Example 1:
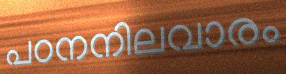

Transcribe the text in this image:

പഠനനിലവാരം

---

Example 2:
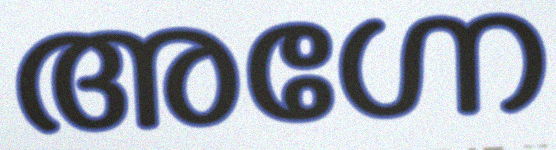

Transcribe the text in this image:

അഗ്നേ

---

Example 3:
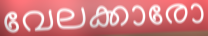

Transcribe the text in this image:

വേലക്കാരോ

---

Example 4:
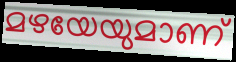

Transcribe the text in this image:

മഴയേയുമാണ്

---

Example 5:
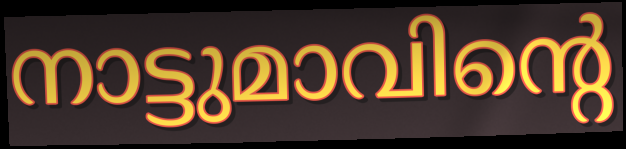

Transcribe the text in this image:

നാട്ടുമാവിന്റെ